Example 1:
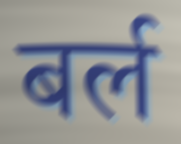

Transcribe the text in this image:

बर्ल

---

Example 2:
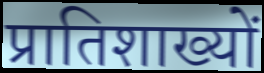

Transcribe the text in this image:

प्रातिशाख्यों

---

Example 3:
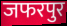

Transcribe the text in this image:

जफरपुर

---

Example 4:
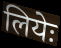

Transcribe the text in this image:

लियेः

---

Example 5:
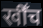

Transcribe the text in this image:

खीँच